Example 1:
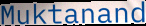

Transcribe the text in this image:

Muktanand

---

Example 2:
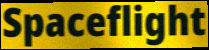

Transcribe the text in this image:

Spaceflight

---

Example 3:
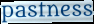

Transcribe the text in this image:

pastness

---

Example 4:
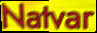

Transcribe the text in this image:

Natvar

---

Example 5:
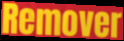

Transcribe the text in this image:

Remover